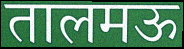
तालमऊ